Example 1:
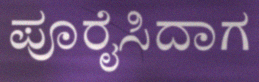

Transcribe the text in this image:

ಪೂರೈಸಿದಾಗ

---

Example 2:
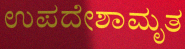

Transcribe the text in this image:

ಉಪದೇಶಾಮೃತ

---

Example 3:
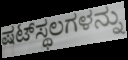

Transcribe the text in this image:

ಷಟ್‌ಸ್ಥಲಗಳನ್ನು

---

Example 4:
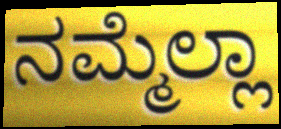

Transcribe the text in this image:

ನಮ್ಮೆಲ್ಲಾ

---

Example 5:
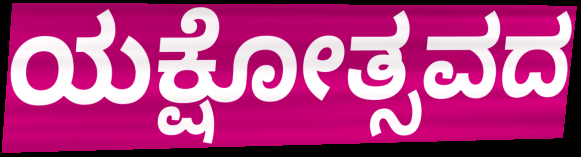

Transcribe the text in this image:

ಯಕ್ಷೋತ್ಸವದ